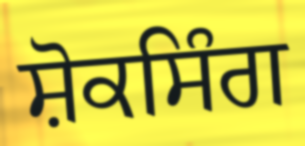
ਸ਼ੋਕਸਿੰਗ